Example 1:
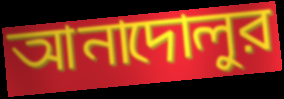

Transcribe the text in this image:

আনাদোলুর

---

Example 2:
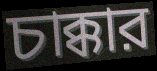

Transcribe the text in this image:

চাক্কার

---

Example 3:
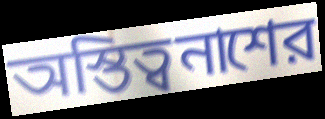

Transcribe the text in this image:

অস্তিত্বনাশের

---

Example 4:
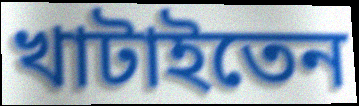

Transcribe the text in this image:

খাটাইতেন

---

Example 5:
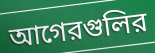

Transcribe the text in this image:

আগেরগুলির